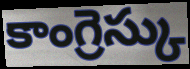
కాంగ్రెస్కు